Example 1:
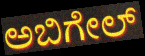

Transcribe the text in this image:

ಅಬಿಗೇಲ್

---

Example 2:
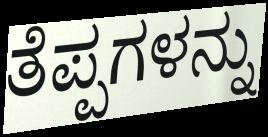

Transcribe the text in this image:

ತೆಪ್ಪಗಳನ್ನು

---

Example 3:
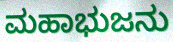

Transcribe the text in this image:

ಮಹಾಭುಜನು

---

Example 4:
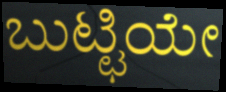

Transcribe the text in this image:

ಬುಟ್ಟಿಯೇ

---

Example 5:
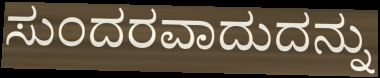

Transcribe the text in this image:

ಸುಂದರವಾದುದನ್ನು